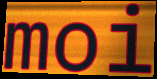
moi